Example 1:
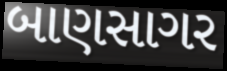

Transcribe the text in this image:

બાણસાગર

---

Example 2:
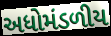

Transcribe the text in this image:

અધોમંડળીય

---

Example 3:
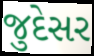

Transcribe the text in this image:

જુદેસર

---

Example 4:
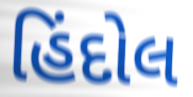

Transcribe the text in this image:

હિંદોલ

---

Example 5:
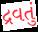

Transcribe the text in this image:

દ્રવતું